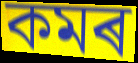
কমৰ